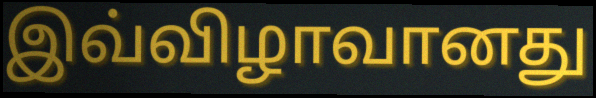
இவ்விழாவானது